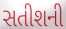
સતીશની